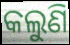
କଲୁଣି